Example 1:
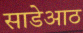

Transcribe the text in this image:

साडेआठ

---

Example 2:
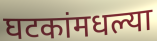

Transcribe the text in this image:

घटकांमधल्या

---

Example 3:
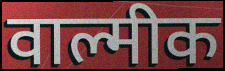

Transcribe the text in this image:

वाल्मीक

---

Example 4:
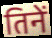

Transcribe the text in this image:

तिनें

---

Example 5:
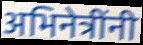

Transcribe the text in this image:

अभिनेत्रींनी